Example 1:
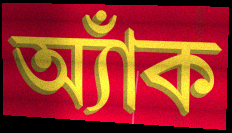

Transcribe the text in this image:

অ্যাঁক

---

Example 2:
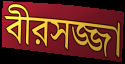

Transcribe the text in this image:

বীরসজ্জা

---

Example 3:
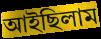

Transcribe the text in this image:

আইছিলাম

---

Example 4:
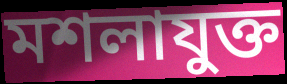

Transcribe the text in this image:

মশলাযুক্ত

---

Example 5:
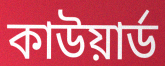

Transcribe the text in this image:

কাউয়ার্ড